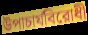
উপাচার্যবিরোধী